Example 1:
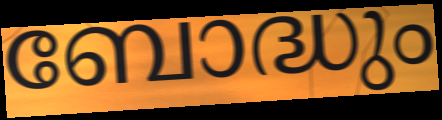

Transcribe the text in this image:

ബോദ്ധും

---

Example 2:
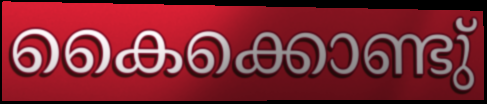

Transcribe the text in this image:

കൈക്കൊണ്ടു്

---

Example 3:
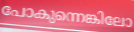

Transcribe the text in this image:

പോകുന്നെങ്കിലോ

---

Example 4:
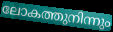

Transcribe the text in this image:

ലോകത്തുനിന്നും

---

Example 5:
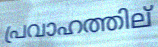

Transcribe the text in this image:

പ്രവാഹത്തില്